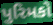
પુરિમકો